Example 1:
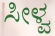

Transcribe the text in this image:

ಸೀಳ್ವ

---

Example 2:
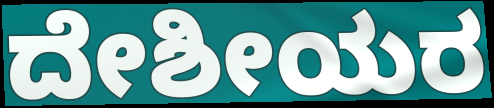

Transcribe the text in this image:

ದೇಶೀಯರ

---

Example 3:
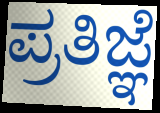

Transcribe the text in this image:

ಪ್ರತಿಜ್ಞೆ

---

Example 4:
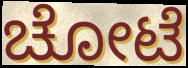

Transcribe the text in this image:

ಚೋಟೆ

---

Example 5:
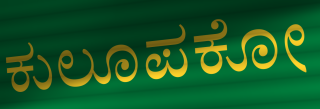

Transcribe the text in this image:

ಕುಲೂಪಕೋ